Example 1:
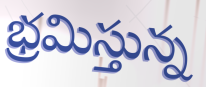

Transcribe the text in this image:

భ్రమిస్తున్న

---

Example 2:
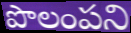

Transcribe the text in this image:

పొలంపని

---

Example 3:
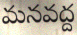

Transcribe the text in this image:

మనవద్ద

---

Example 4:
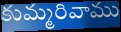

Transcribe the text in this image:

కుమ్మరివాము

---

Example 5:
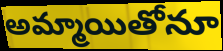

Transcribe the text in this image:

అమ్మాయితోనూ